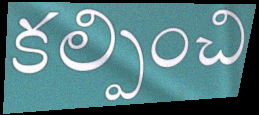
కల్పించి